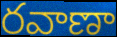
రవాణా